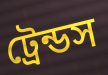
ট্রেন্ডস